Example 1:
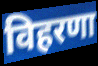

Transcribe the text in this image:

विहरणा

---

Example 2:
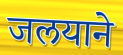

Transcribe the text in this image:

जलयाने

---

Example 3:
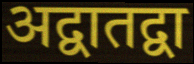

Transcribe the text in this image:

अद्वातद्वा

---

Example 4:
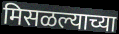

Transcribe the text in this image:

मिसळल्याच्या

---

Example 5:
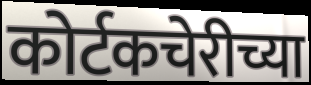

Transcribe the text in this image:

कोर्टकचेरीच्या